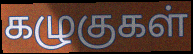
கழுகுகள்